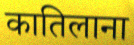
कातिलाना